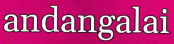
andangalai